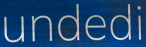
undedi